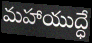
మహాయుద్ధే